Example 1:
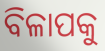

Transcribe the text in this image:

ବିଳାପକୁ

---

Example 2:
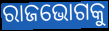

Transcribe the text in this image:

ରାଜଭୋଗକୁ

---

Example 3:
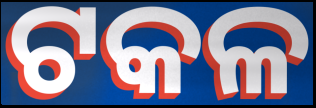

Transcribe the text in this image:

ଟକଳ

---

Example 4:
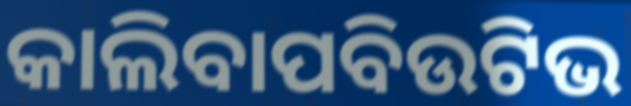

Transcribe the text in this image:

କାଲିବାପବିଉଟିଭ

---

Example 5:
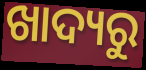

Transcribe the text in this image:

ଖାଦ୍ୟରୁ